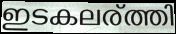
ഇടകലര്ത്തി